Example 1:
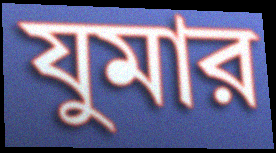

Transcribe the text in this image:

যুমার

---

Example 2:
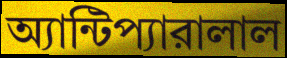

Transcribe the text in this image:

অ্যান্টিপ্যারালাল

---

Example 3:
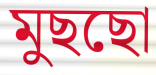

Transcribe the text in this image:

মুছছো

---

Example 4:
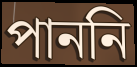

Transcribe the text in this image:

পাননি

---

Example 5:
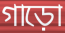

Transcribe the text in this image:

গাড়ো